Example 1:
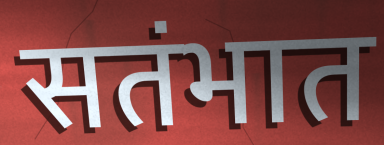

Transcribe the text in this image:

सतंभात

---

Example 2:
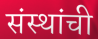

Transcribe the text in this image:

संस्थांची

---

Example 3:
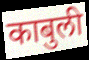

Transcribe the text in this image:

काबुली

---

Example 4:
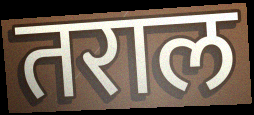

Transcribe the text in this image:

तराल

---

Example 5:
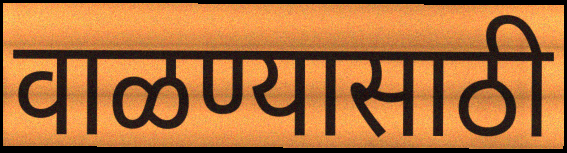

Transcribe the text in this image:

वाळण्यासाठी